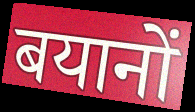
बयानों